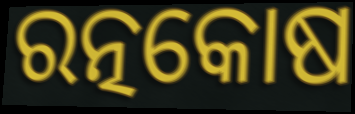
ରତ୍ନକୋଷ